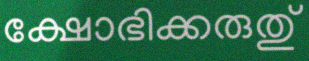
ക്ഷോഭിക്കരുതു്